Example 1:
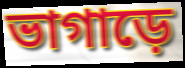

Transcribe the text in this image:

ভাগাড়ে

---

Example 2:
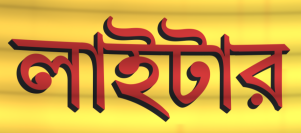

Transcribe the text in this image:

লাইটার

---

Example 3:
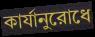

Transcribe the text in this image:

কার্যানুরোধে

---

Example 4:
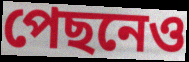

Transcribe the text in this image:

পেছনেও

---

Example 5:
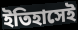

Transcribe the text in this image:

ইতিহাসেই